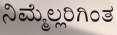
ನಿಮ್ಮೆಲ್ಲರಿಗಿಂತ